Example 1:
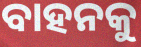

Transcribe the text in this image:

ବାହନକୁ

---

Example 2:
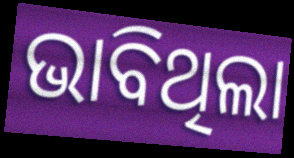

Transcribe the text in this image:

ଭାବିଥିଲା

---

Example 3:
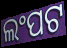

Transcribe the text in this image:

ଲଂପଟ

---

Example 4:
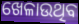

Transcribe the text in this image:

ଖେଳାଉଥିବ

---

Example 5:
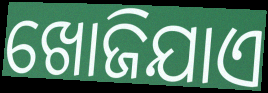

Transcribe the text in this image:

ଖୋଜିଯାଏ